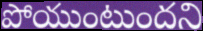
పోయుంటుందని